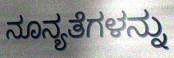
ನೂನ್ಯತೆಗಳನ್ನು